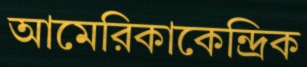
আমেরিকাকেন্দ্রিক